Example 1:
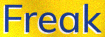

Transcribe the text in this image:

Freak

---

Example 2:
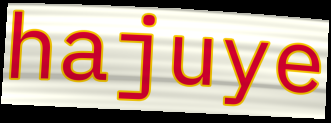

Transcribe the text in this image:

hajuye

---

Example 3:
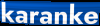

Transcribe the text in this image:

karanke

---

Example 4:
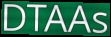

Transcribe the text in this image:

DTAAs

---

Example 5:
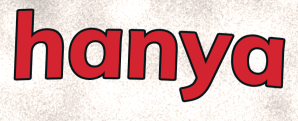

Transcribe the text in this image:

hanya